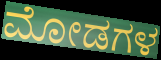
ಮೋಡಗಳ